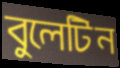
বুলেটিন